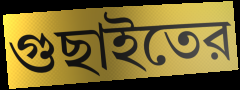
গুছাইতের